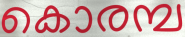
കൊരമ്പ